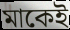
মাকেই